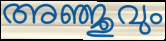
അഞ്ജുവും